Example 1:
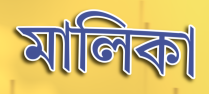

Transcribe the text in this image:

মালিকা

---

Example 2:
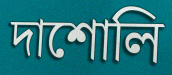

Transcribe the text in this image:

দাশোলি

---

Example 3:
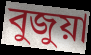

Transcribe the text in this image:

বুজুয়া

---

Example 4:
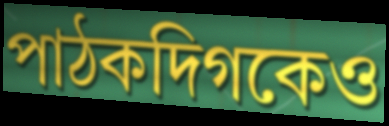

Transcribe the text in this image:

পাঠকদিগকেও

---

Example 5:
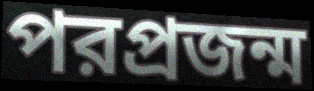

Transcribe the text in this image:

পরপ্রজন্ম